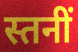
स्तनीं